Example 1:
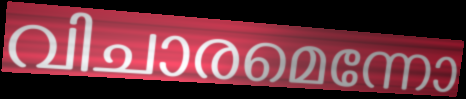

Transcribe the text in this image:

വിചാരമെന്നോ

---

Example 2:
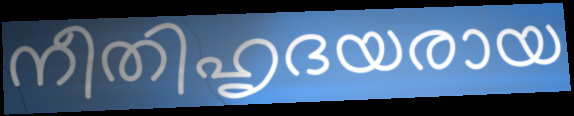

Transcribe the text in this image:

നീതിഹൃദയരായ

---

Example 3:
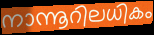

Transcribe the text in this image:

നാന്നൂറിലധികം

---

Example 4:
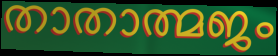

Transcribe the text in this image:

താതാത്മജം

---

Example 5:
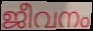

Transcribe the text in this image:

ജീവനം